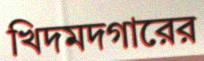
খিদমদগারের